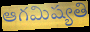
ఆగమిష్యతి